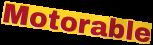
Motorable